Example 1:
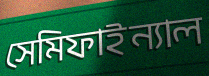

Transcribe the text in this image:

সেমিফাইন্যাল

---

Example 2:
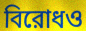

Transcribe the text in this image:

বিরোধও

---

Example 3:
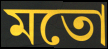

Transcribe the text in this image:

মতো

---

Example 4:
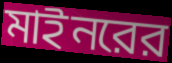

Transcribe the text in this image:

মাইনরের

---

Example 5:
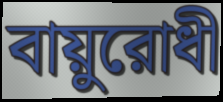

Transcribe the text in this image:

বায়ুরোধী